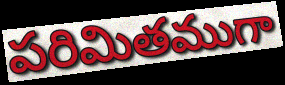
పరిమితముగా